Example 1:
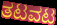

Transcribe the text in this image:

ತಟವಟ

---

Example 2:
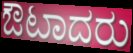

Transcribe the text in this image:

ಔಟಾದರು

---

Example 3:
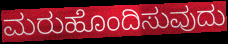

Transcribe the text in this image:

ಮರುಹೊಂದಿಸುವುದು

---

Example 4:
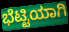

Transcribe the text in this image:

ಭೆಟ್ಟಿಯಾಗಿ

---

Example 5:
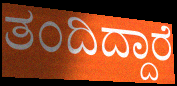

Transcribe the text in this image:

ತಂದಿದ್ದಾರೆ